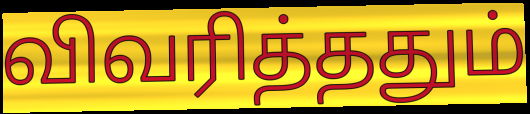
விவரித்ததும்